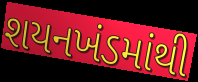
શયનખંડમાંથી